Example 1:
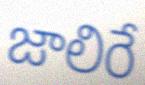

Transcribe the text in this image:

జాలిరే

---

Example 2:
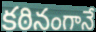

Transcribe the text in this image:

కఠినంగానే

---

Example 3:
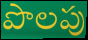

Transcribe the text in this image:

పొలపు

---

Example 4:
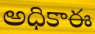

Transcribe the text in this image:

అధికాఈ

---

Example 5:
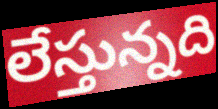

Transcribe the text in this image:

లేస్తున్నది